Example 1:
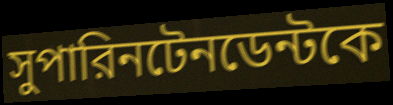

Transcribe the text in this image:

সুপারিনটেনডেন্টকে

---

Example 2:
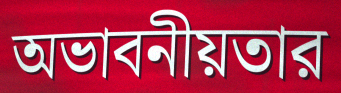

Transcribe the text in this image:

অভাবনীয়তার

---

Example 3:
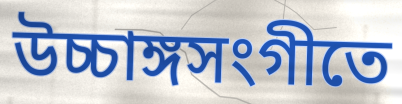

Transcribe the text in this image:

উচ্চাঙ্গসংগীতে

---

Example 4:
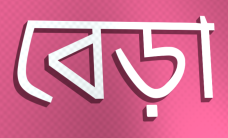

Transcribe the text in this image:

বেড়া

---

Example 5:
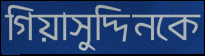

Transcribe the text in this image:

গিয়াসুদ্দিনকে